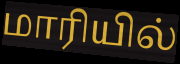
மாரியில்